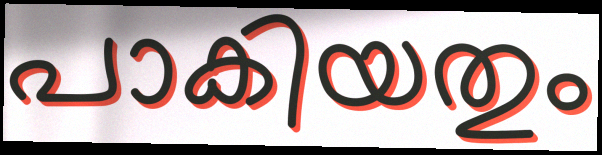
പാകിയതും